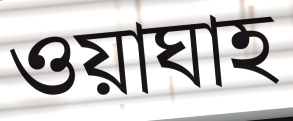
ওয়াঘাহ